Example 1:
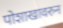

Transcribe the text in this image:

पोशाखावरुन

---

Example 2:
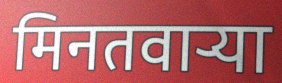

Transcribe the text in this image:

मिनतवार्‍या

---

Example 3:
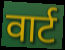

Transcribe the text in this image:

वार्ट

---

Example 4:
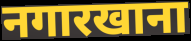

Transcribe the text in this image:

नगारखाना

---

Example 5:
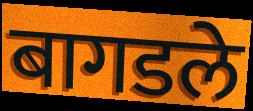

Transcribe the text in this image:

बागडले